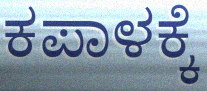
ಕಪಾಳಕ್ಕೆ